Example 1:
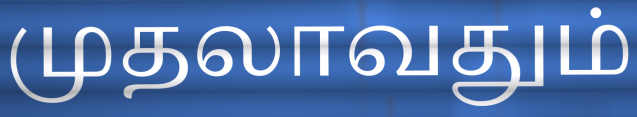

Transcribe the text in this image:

முதலாவதும்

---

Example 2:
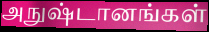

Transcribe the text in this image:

அநுஷ்டானங்கள்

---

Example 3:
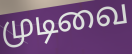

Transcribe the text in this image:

முடிவை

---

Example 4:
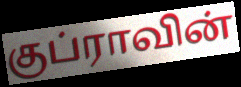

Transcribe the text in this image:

குப்ராவின்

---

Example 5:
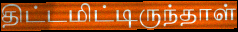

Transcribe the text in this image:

திட்டமிட்டிருந்தாள்